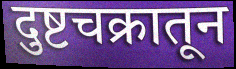
दुष्टचक्रातून